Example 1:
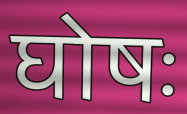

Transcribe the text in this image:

घोषः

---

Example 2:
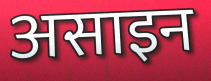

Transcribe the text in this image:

असाइन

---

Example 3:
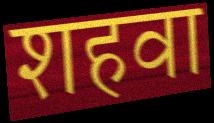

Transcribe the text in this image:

शहवा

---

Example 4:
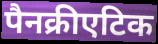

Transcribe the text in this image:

पैनक्रीएटिक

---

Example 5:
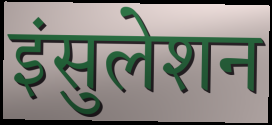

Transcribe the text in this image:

इंसुलेशन